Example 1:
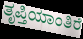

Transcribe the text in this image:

ತೃಪ್ತಿಯಾಂತಿರೆ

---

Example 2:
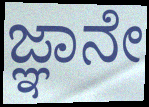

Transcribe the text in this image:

ಜ್ಞಾನೇ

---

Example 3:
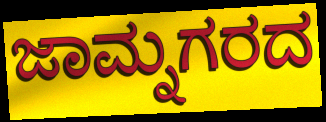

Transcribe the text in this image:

ಜಾಮ್ನಗರದ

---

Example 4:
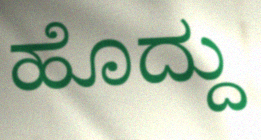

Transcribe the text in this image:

ಹೊದ್ದು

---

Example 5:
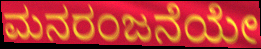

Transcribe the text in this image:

ಮನರಂಜನೆಯೇ